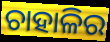
ଚାହାଳିର